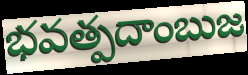
భవత్పదాంబుజ